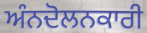
ਅੰਨਦੋਲਨਕਾਰੀ